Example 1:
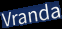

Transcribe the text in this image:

Vranda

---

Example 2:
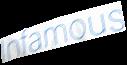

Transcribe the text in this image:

Infamous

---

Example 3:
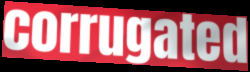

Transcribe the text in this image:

corrugated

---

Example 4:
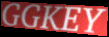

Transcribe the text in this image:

GGKEY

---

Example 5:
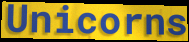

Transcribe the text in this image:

Unicorns